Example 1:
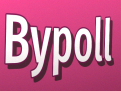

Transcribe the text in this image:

Bypoll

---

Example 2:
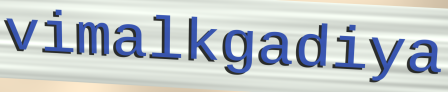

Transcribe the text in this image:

vimalkgadiya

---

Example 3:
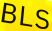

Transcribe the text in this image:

BLS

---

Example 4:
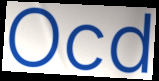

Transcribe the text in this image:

Ocd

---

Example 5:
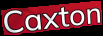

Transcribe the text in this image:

Caxton